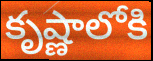
కృష్ణాలోకి